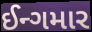
ઈન્ગમાર